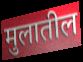
मुलातील